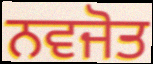
ਨਵਜੋਤ